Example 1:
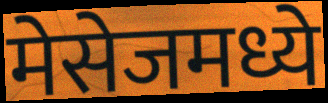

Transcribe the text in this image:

मेसेजमध्ये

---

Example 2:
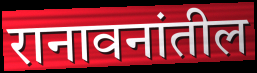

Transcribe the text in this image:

रानावनांतील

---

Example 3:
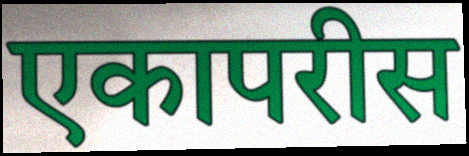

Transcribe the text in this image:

एकापरीस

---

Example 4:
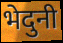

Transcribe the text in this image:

भेदुनी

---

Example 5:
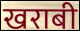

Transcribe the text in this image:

खराबी